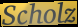
Scholz